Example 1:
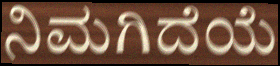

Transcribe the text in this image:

ನಿಮಗಿದೆಯೆ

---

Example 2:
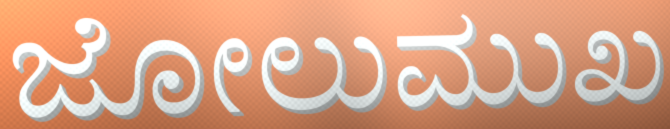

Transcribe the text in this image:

ಜೋಲುಮುಖ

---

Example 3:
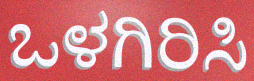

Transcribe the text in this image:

ಒಳಗಿರಿಸಿ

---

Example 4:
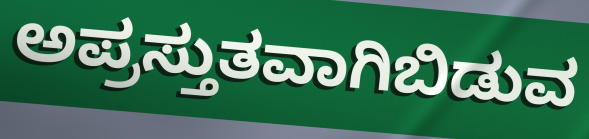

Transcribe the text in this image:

ಅಪ್ರಸ್ತುತವಾಗಿಬಿಡುವ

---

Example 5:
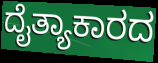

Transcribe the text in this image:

ದೈತ್ಯಾಕಾರದ